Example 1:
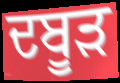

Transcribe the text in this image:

ਦਬੂੜ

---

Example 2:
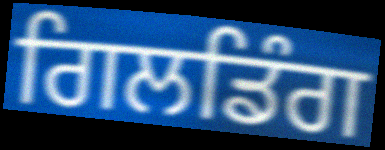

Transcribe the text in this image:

ਗਿਲਡਿੰਗ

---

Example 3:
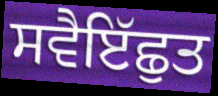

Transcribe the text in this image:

ਸਵੈਇੱਛੁਤ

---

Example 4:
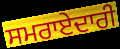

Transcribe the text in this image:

ਸਮਰਾਏਦਾਰੀ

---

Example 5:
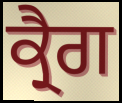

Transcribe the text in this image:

ਕ੍ਰੈਗ